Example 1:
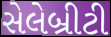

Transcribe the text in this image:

સેલેબ્રીટી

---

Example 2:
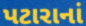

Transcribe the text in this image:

પટારાનાં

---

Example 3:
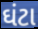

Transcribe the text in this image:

ઘંટા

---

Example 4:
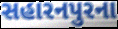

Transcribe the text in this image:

સહારનપુરના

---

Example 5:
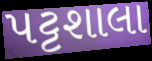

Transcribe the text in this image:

પટ્ટશાલા